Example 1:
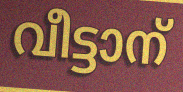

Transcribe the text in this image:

വീട്ടാന്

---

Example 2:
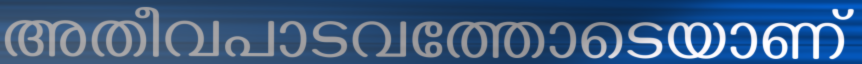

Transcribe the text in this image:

അതീവപാടവത്തോടെയാണ്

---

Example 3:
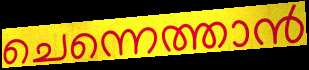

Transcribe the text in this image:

ചെന്നെത്താൻ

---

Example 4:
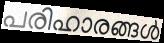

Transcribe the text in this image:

പരിഹാരങ്ങൾ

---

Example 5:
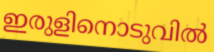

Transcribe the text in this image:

ഇരുളിനൊടുവിൽ